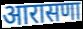
आरासणा